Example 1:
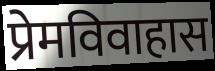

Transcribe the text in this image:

प्रेमविवाहास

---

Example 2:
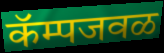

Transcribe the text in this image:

कॅम्पजवळ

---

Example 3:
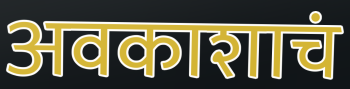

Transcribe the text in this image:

अवकाशाचं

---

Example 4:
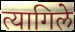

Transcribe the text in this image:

त्यागिले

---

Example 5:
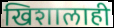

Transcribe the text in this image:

खिशालाही